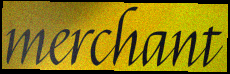
merchant